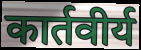
कार्तवीर्य